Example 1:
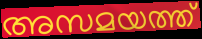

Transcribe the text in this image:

അസമയത്ത്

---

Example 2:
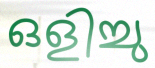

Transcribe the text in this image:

ഒളിച്ചു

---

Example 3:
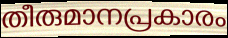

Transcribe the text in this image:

തീരുമാനപ്രകാരം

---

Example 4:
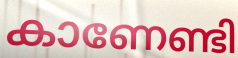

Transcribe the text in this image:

കാണേണ്ടി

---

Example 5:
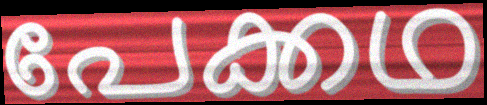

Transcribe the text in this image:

പേക്കഥ